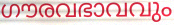
ഗൗരവഭാവവും